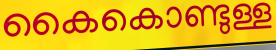
കൈകൊണ്ടുള്ള